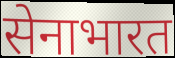
सेनाभारत